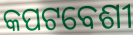
କପଟବେଶୀ